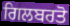
ਗਿਲਬਰਤੋ